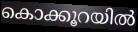
കൊക്കൂറയിൽ